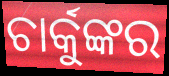
ଚାର୍କୁଙ୍କର